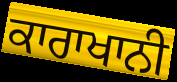
ਕਾਰਾਖਾਨੀ